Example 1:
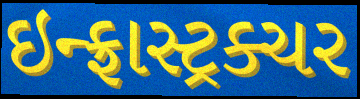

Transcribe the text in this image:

ઇન્ફ્રાસ્ટ્રક્ચર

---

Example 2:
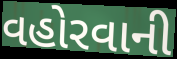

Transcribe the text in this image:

વહોરવાની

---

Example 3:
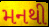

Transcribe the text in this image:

મનથી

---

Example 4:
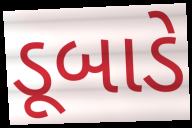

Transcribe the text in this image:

ડૂબાડે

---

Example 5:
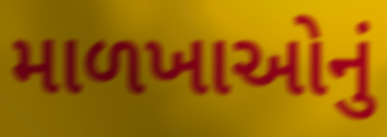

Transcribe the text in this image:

માળખાઓનું